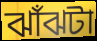
ঝাঁঝটা